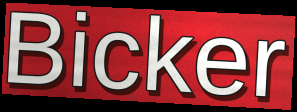
Bicker